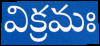
విక్రమః